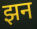
झन